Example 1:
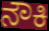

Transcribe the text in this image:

ನೌಕಿ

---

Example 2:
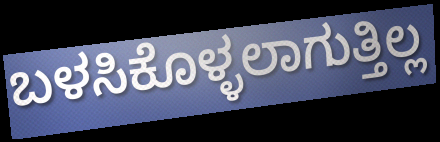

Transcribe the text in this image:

ಬಳಸಿಕೊಳ್ಳಲಾಗುತ್ತಿಲ್ಲ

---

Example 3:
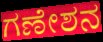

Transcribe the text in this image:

ಗಣೇಶನ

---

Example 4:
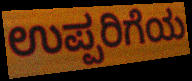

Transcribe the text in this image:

ಉಪ್ಪರಿಗೆಯ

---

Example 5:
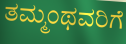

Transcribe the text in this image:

ತಮ್ಮಂಥವರಿಗೆ